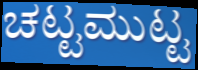
ಚಟ್ಟಮುಟ್ಟ